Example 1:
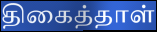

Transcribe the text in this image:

திகைத்தாள்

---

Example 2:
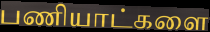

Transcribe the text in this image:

பணியாட்களை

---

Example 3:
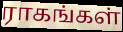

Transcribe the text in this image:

ராகங்கள்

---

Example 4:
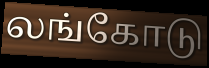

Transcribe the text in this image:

லங்கோடு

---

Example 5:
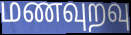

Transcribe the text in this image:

மணவுறவு